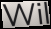
Wil